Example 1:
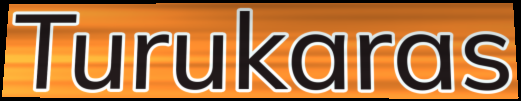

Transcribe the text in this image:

Turukaras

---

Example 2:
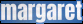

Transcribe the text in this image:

margaret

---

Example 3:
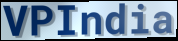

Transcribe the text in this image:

VPIndia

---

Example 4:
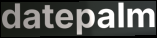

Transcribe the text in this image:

datepalm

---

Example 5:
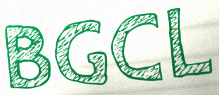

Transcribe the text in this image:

BGCL